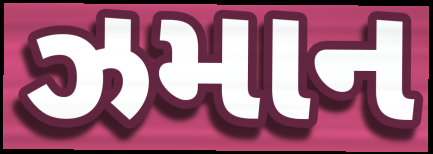
ઝમાન